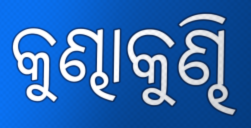
କୁଣ୍ଢାକୁଣ୍ଢି